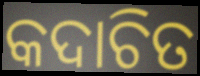
କଦାଚିତ